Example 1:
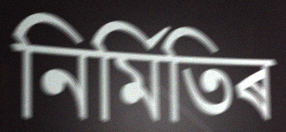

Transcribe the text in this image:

নিৰ্মিতিৰ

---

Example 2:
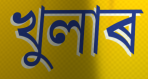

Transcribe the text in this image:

খুলাৰ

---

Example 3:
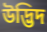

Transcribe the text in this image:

উদ্ভিদ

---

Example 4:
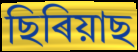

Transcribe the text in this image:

ছিৰিয়াছ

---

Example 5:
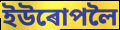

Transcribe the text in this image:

ইউৰোপলৈ